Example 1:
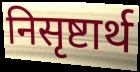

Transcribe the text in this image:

निसृष्टार्थ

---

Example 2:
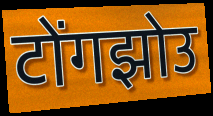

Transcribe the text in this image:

टोंगझोउ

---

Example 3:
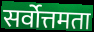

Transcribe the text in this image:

सर्वोत्तमता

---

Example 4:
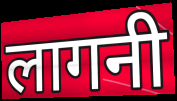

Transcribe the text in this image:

लागनी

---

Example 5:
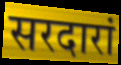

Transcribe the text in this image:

सरदारां